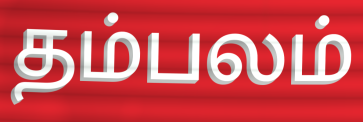
தம்பலம்